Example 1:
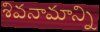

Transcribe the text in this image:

శివనామాన్ని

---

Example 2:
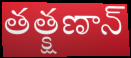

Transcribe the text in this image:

తత్క్షణాన్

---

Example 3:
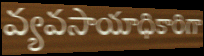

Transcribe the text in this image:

వ్యవసాయాధికారిగా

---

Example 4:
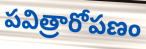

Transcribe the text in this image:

పవిత్రారోపణం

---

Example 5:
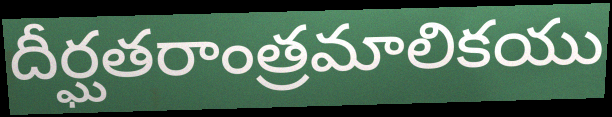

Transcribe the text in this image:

దీర్ఘతరాంత్రమాలికయు